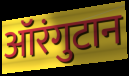
ऑरंगुटान